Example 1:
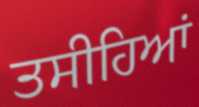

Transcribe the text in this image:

ਤਸੀਹਿਆਂ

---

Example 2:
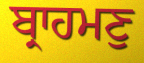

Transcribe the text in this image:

ਬ੍ਰਾਹਮਣੁ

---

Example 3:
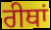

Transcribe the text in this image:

ਰੀਥਾਂ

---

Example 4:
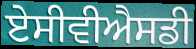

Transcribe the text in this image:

ਏਸੀਵੀਐਸਡੀ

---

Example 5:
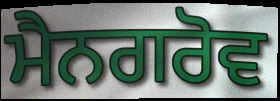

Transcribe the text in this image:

ਮੈਨਗਰੋਵ